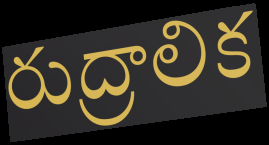
రుద్రాలిక